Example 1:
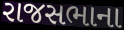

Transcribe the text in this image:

રાજસભાના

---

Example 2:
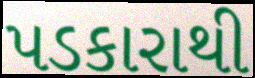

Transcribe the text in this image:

પડકારાથી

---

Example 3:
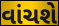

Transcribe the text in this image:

વાંચશે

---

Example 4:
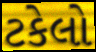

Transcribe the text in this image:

ટકેલો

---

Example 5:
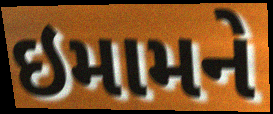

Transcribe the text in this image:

ઇમામને